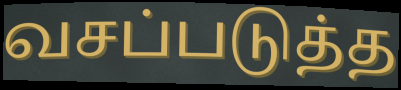
வசப்படுத்த